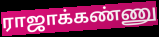
ராஜாக்கண்ணு